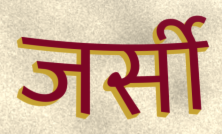
जर्सी